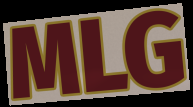
MLG